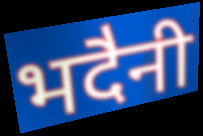
भदैनी